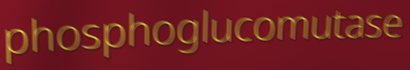
phosphoglucomutase